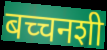
बच्चनशी